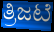
ತ್ರಿಜಟೆ